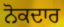
ਨੋਕਦਾਰ